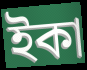
ইকা